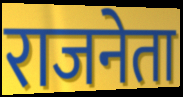
राजनेता